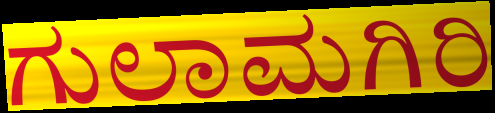
ಗುಲಾಮಗಿರಿ